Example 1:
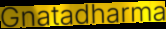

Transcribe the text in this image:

Gnatadharma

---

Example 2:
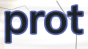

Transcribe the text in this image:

prot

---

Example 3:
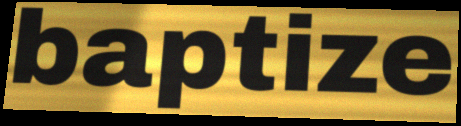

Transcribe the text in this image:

baptize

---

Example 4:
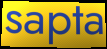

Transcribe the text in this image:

sapta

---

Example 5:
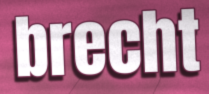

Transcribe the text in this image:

brecht